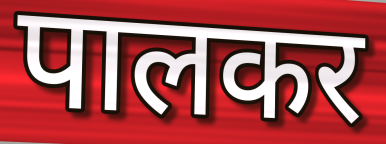
पालकर